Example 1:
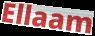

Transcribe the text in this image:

Ellaam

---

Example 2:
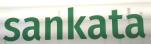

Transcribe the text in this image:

sankata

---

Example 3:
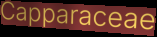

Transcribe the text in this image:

Capparaceae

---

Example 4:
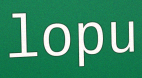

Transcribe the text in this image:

lopu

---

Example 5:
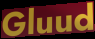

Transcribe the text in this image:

Gluud